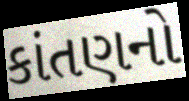
કાંતણનો